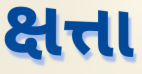
ક્ષત્તા